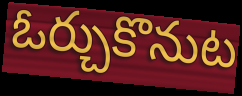
ఓర్చుకొనుట